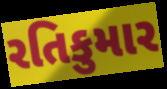
રતિકુમાર